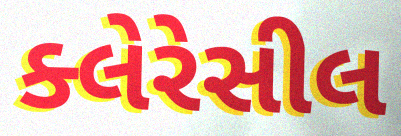
ક્લેરેસીલ